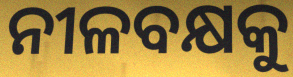
ନୀଳବକ୍ଷକୁ